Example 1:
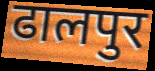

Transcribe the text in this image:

ढालपुर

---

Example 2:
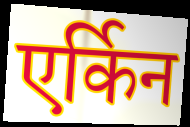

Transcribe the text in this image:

एर्किन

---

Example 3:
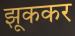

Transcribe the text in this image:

झूककर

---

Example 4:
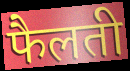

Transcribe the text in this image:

फैलती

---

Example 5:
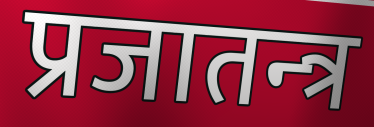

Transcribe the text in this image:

प्रजातन्त्र